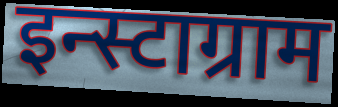
इन्स्टाग्राम